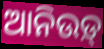
ଆନିଉଡ଼୍